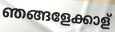
ഞങ്ങളേക്കാള്